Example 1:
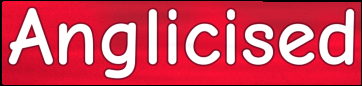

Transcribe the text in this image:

Anglicised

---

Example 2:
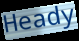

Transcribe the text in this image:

Heady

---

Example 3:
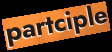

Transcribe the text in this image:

partciple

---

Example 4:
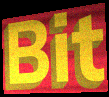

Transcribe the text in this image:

Bit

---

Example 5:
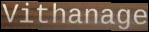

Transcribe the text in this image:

Vithanage